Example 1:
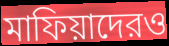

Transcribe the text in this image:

মাফিয়াদেরও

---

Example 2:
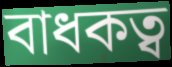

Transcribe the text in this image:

বাধকত্ব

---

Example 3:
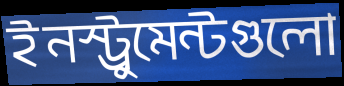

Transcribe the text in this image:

ইনস্ট্রুমেন্টগুলো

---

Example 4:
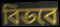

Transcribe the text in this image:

বিভবে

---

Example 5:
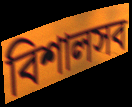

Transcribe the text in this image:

বিশালসব